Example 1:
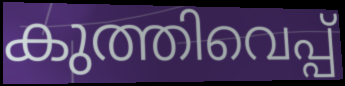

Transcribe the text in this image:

കുത്തിവെപ്പ്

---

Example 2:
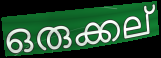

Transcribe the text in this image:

ഒരുക്കല്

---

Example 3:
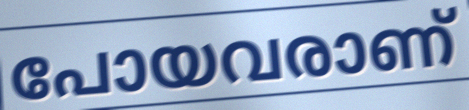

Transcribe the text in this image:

പോയവരാണ്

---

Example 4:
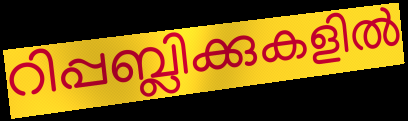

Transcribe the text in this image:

റിപ്പബ്ലിക്കുകളിൽ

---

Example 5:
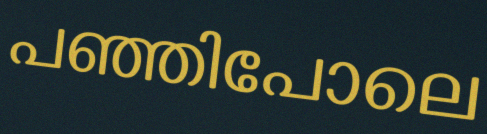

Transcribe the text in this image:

പഞ്ഞിപോലെ